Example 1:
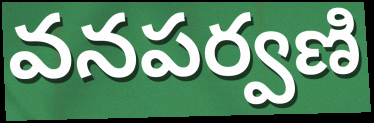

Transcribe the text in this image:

వనపర్వణి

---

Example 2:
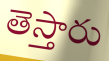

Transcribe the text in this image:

తెస్తారు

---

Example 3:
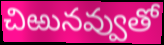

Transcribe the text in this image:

చిఱునవ్వుతో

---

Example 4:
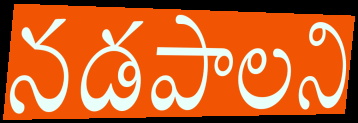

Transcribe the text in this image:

నడపాలని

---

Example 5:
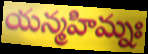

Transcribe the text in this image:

యన్మహిమ్నః